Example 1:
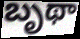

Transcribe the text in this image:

బృథా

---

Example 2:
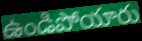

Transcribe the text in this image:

ఉండిపోయారు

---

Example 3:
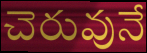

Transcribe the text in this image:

చెరువునే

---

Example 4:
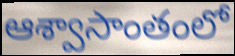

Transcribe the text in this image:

ఆశ్వాసాంతంలో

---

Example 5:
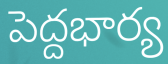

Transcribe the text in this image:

పెద్దభార్య